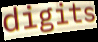
digits